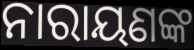
ନାରାୟଣଙ୍କ